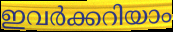
ഇവർക്കറിയാം